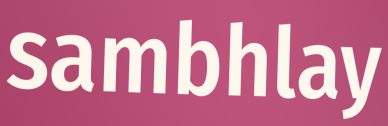
sambhlay